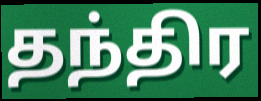
தந்திர